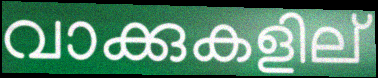
വാക്കുകളില്